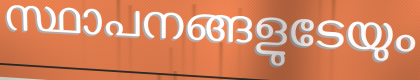
സ്ഥാപനങ്ങളുടേയും